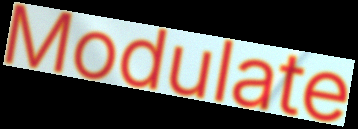
Modulate